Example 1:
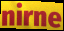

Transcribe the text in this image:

nirne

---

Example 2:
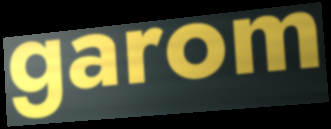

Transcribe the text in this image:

garom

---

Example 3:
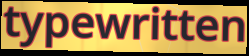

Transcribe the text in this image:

typewritten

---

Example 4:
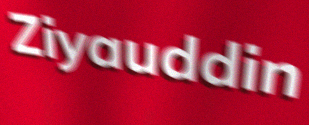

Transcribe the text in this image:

Ziyauddin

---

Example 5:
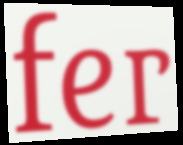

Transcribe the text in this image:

fer